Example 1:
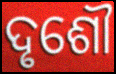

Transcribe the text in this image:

ଦୃଶୌ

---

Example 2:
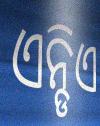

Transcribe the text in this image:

ଏନ୍ଡିଏ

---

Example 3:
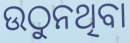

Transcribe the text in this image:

ଉଠୁନଥିବା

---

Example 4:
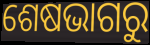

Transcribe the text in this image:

ଶେଷଭାଗରୁ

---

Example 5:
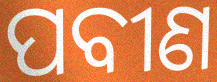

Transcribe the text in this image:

ପବୀଣ